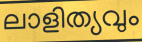
ലാളിത്യവും